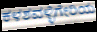
ಕಳಶವಳ್ಳಿಗೇರಿಯ